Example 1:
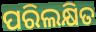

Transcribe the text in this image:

ପରିଲକ୍ଷିତ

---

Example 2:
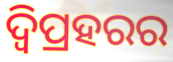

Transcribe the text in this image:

ଦ୍ବିପ୍ରହରର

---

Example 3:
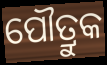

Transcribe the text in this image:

ପୌତ୍ରୁକ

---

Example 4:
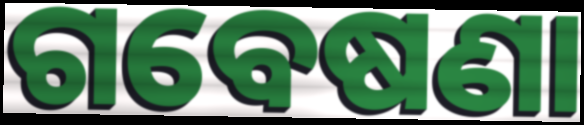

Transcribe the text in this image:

ଗବେଷଣା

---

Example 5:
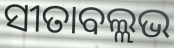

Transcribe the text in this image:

ସୀତାବଲ୍ଲଭ